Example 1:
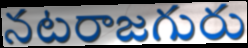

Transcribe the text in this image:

నటరాజగురు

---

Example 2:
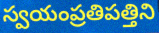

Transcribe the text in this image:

స్వయంప్రతిపత్తిని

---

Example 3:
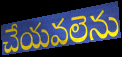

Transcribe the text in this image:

చేయవలెను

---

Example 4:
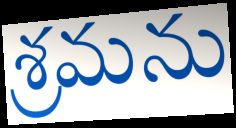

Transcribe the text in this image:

శ్రమను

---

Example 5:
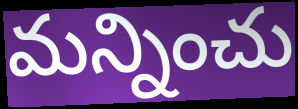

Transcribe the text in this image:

మన్నించు